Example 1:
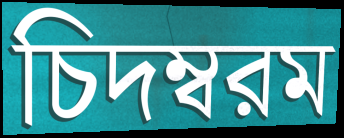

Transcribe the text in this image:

চিদম্বরম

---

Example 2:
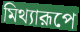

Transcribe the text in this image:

মিথ্যারূপে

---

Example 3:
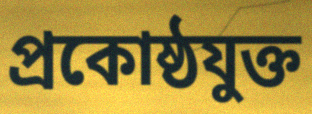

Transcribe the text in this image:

প্রকোষ্ঠযুক্ত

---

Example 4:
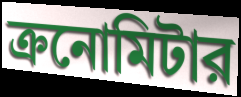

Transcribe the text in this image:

ক্রনোমিটার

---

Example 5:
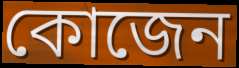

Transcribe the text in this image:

কোজেন